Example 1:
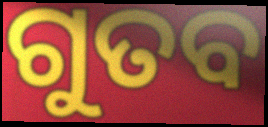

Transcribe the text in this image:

ଗୁତବ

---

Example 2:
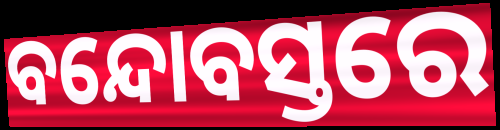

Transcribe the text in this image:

ବନ୍ଦୋବସ୍ତରେ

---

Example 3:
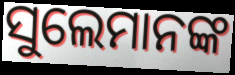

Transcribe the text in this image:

ସୁଲେମାନଙ୍କ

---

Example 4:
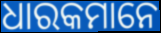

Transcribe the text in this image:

ଧାରକମାନେ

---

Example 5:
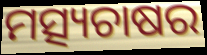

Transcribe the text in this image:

ମତ୍ସ୍ୟଚାଷର